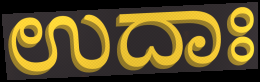
ಉದಾಃ